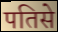
पतिसे